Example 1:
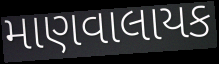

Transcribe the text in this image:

માણવાલાયક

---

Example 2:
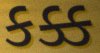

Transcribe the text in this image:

કક્ક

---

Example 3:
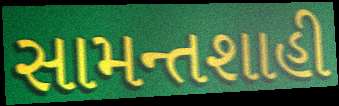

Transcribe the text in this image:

સામન્તશાહી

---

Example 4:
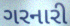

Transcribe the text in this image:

ગરનારી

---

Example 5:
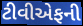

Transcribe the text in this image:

ટીવીએફની